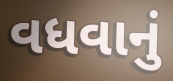
વધવાનું